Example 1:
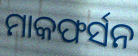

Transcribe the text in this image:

ମାକଫର୍ସନ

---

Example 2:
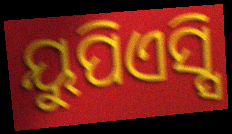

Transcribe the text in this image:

ୟୁପିଏସ୍ସି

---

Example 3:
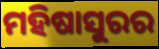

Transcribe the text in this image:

ମହିଷାସୁରର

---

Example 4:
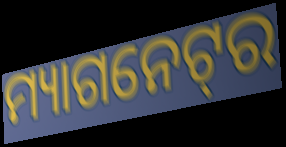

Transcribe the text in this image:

ମ୍ୟାଗନେଟ୍‌ର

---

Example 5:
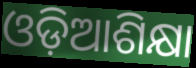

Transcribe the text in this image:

ଓଡ଼ିଆଶିକ୍ଷା